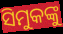
ସିମୁକଙ୍କୁ